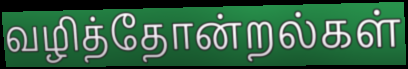
வழித்தோன்றல்கள்